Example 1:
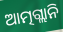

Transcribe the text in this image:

ଆତ୍ମଗ୍ଲାନି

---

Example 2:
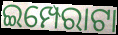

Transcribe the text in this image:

ଇମ୍ପେରାଟା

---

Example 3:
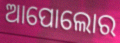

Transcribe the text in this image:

ଆପୋଲୋର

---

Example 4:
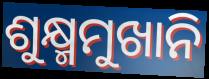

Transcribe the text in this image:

ଶୁକ୍ଷ୍ମମୁଖାନି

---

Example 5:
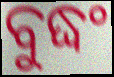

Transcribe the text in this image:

ବୁଦ୍ଧଂ